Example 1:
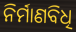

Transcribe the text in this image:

ନିର୍ମାଣବିଧି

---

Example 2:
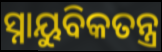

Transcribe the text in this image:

ସ୍ନାୟୁବିକତନ୍ତ୍ର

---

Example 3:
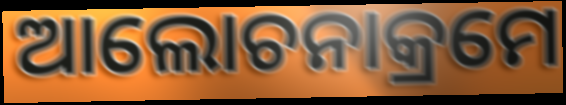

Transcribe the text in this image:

ଆଲୋଚନାକ୍ରମେ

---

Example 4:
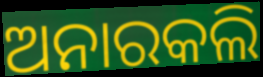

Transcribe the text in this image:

ଅନାରକଲି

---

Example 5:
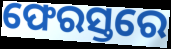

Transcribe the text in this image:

ଫେରସ୍ତରେ